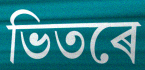
ভিতৰে